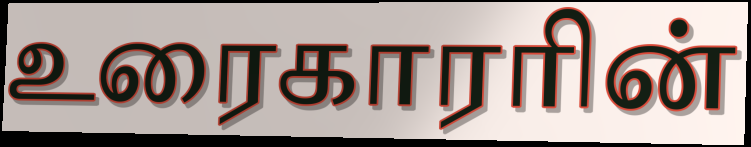
உரைகாரரின்